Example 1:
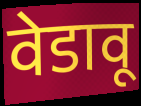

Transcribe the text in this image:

वेडावू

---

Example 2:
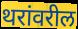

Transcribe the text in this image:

थरांवरील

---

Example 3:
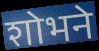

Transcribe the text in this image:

शोभने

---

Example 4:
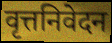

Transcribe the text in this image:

वृत्तनिवेदन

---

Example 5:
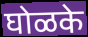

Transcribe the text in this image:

घोळके